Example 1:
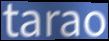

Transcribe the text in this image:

tarao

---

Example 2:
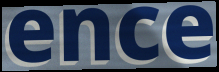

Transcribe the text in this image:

ence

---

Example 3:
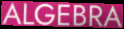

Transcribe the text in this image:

ALGEBRA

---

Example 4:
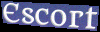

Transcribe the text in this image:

Escort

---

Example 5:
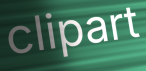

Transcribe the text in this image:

clipart